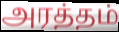
அரத்தம்